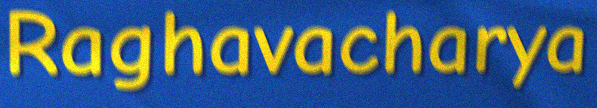
Raghavacharya